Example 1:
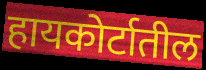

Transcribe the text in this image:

हायकोर्टातील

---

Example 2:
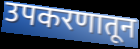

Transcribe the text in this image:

उपकरणातून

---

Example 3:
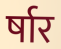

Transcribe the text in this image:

र्षार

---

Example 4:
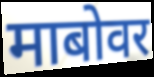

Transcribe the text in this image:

माबोवर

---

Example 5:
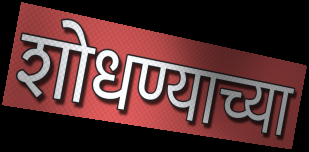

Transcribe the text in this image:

शोधण्याच्या